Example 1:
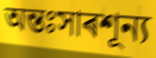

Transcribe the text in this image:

অন্তঃসাৰশূন্য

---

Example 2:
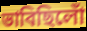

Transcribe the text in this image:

ভাবিছিলোঁ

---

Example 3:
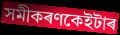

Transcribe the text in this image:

সমীকৰণকেইটাৰ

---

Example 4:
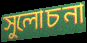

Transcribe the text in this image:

সুলোচনা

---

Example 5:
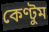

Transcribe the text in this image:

কেণ্টুম